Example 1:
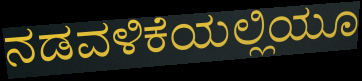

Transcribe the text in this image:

ನಡವಳಿಕೆಯಲ್ಲಿಯೂ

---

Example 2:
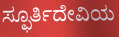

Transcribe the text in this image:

ಸ್ಫೂರ್ತಿದೇವಿಯ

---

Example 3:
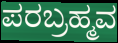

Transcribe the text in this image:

ಪರಬ್ರಹ್ಮವ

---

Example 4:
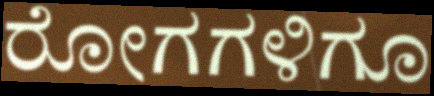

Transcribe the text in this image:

ರೋಗಗಳಿಗೂ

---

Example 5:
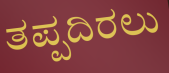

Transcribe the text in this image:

ತಪ್ಪದಿರಲು